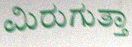
ಮಿರುಗುತ್ತಾ